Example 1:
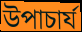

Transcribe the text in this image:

উপাচার্য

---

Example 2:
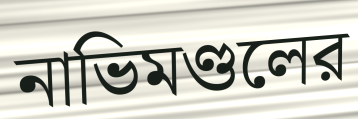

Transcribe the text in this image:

নাভিমণ্ডলের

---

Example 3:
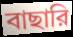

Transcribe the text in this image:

বাছারি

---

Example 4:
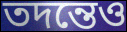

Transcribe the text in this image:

তদন্তেও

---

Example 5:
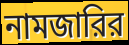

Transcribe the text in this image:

নামজারির